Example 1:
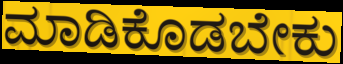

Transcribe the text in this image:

ಮಾಡಿಕೊಡಬೇಕು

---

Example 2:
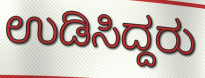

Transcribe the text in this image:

ಉಡಿಸಿದ್ದರು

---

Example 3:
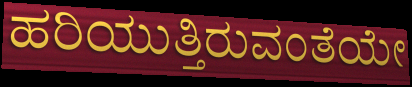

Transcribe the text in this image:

ಹರಿಯುತ್ತಿರುವಂತೆಯೇ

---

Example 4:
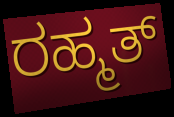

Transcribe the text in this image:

ರಹ್ಮತ್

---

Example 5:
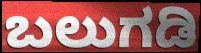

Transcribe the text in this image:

ಬಲುಗಡಿ